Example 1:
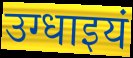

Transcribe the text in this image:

उग्धाइयं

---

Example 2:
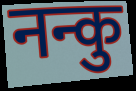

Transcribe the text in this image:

नन्कु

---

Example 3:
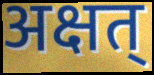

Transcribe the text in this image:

अक्षत्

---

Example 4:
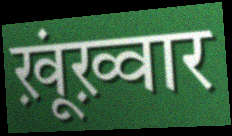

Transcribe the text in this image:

ख़ूंख़्वार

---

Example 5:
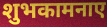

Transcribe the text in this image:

शुभकामनाए